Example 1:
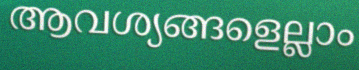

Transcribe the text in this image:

ആവശ്യങ്ങളെല്ലാം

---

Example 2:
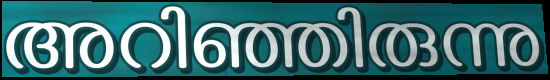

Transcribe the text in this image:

അറിഞ്ഞിരുന്നു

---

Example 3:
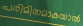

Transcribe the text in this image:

പരിമിതമാകയാൽ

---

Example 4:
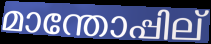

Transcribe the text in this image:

മാന്തോപ്പില്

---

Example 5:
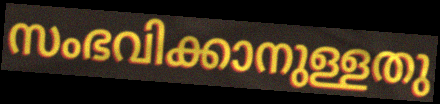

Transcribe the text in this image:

സംഭവിക്കാനുള്ളതു